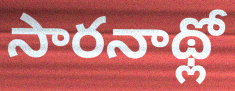
సారనాథ్లో